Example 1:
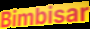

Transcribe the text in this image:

Bimbisar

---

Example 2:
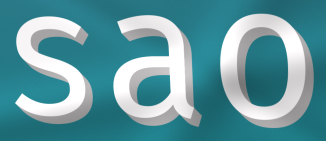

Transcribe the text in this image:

sao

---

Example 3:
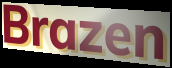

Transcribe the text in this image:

Brazen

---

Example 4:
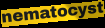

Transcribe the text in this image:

nematocyst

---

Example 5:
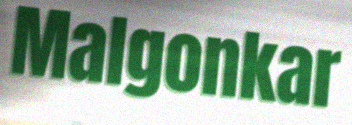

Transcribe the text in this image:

Malgonkar